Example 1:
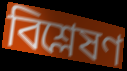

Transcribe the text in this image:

বিশ্লেষণ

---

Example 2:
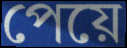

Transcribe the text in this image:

পেয়ে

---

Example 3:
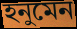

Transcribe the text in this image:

হনুমেন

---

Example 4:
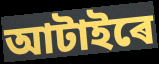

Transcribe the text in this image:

আটাইৰে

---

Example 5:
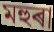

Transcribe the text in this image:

মহুৰা